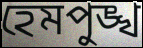
হেমপুঙ্খ